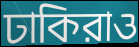
ঢাকিরাও